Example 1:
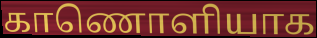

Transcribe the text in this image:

காணொளியாக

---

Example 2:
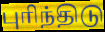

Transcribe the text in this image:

புரிந்திடு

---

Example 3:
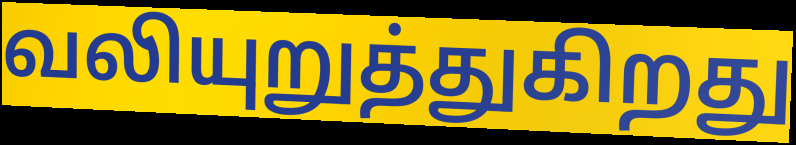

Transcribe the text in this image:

வலியுறுத்துகிறது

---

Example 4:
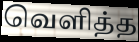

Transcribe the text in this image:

வெளித்த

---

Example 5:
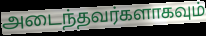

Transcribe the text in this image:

அடைந்தவர்களாகவும்